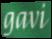
gavi